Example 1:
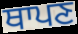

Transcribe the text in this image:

ਥਾਪਣ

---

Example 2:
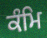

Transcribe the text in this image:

ਕੰਮਿ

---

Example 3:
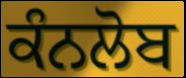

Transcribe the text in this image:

ਕੰਨਲੋਬ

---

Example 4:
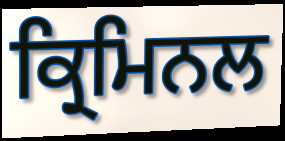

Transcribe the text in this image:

ਕ੍ਰਿਮਿਨਲ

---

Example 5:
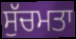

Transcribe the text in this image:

ਸੁੱਚਮਤਾ